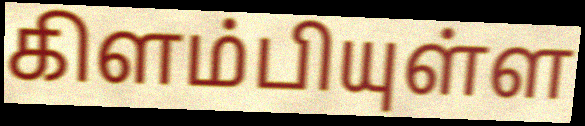
கிளம்பியுள்ள